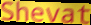
Shevat